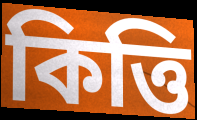
কিত্তি